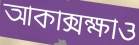
আকাক্সক্ষাও